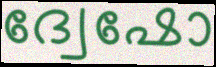
ദ്വേഷോ